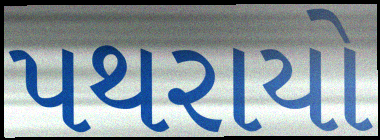
પથરાયો